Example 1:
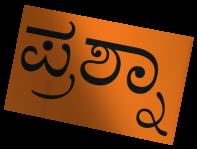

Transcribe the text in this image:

ಪ್ರಶ್ನಾ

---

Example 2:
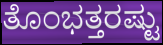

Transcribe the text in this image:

ತೊಂಭತ್ತರಷ್ಟು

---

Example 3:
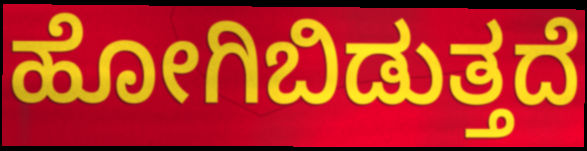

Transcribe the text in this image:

ಹೋಗಿಬಿಡುತ್ತದೆ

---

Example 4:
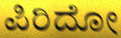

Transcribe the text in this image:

ಪಿರಿದೋ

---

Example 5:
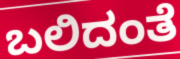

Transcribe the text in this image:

ಬಲಿದಂತೆ